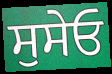
ਸੁਸੇਓ